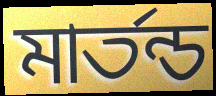
মার্তন্ড